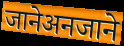
जानेअनजाने